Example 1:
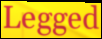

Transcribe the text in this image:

Legged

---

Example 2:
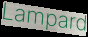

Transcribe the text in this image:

Lampard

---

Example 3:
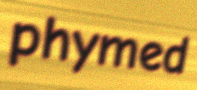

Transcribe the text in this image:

phymed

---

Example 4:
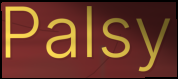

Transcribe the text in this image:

Palsy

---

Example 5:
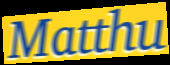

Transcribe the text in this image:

Matthu